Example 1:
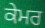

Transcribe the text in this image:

ਕੇਮਰ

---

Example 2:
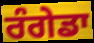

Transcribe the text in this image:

ਰੰਗੇਡਾ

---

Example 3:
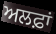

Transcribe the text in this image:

ਅਲਫ਼ਾਂ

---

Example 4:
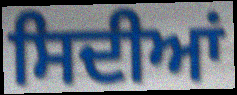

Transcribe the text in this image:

ਸਿਦੀਆਂ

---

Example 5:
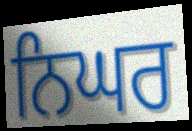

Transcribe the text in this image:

ਨਿਘਰ